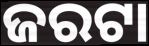
ଜରଟା